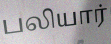
பலியார்